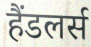
हैंडलर्स